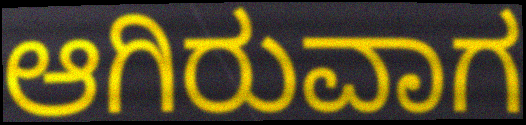
ಆಗಿರುವಾಗ